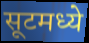
सूटमध्ये